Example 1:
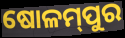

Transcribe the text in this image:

ଷୋଳମ୍‌ପୁର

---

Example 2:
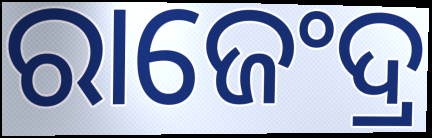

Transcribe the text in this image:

ରାଜେଂଦ୍ର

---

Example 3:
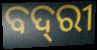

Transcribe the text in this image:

ବଦ୍‌ରୀ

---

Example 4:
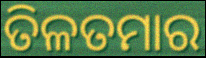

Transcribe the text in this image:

ତିଳତମାର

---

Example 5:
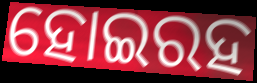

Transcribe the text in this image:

ହୋଇରହ